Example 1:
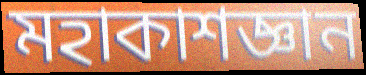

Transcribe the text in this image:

মহাকাশজ্ঞান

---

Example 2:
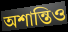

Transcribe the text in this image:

অশান্তিও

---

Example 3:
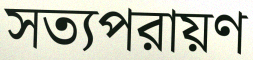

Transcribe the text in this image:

সত্যপরায়ণ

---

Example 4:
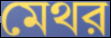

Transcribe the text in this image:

মেথর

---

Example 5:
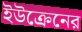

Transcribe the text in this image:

ইউক্রেনের